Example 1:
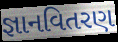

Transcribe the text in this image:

જ્ઞાનવિતરણ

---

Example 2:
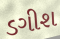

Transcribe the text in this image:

ડગીશ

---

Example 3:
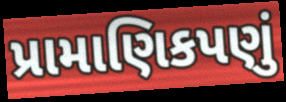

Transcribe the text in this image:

પ્રામાણિકપણું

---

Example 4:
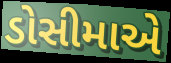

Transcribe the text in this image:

ડોસીમાએ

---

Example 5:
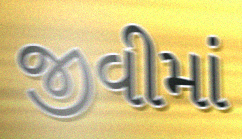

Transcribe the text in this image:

જીવીમાં